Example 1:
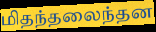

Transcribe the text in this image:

மிதந்தலைந்தன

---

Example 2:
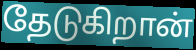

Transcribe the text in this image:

தேடுகிறான்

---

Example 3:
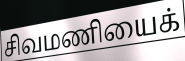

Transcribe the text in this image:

சிவமணியைக்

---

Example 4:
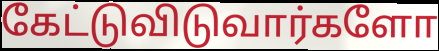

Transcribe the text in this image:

கேட்டுவிடுவார்களோ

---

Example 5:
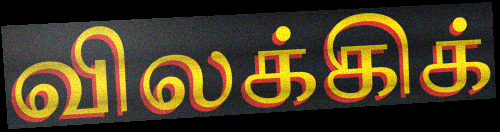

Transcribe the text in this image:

விலக்கிக்